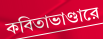
কবিতাভাণ্ডারে